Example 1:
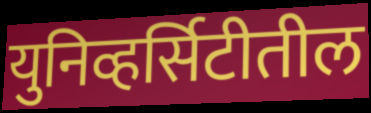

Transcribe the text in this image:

युनिव्हर्सिटीतील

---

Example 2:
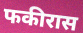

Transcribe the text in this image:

फकीरास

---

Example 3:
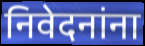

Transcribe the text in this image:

निवेदनांना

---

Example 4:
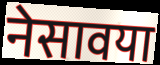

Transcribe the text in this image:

नेसावया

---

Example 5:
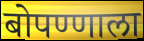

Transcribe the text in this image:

बोपण्णाला